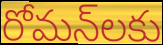
రోమన్‌లకు